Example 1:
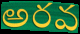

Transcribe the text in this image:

అరవ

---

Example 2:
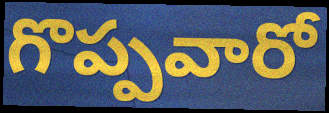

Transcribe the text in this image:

గొప్పవారో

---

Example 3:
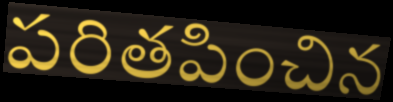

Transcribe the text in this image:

పరితపించిన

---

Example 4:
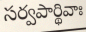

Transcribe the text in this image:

సర్వపార్థివాః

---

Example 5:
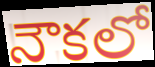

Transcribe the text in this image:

నౌకలో